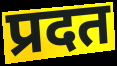
प्रदत